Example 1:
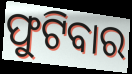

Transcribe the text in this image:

ଫୁଟିବାର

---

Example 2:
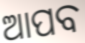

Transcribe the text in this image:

ଆପବ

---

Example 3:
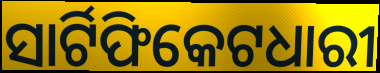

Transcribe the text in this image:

ସାର୍ଟିଫିକେଟଧାରୀ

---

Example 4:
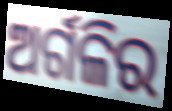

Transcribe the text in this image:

ଅର୍ଗଳିର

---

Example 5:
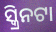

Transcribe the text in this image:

ସ୍କ୍ରିନଟା